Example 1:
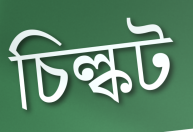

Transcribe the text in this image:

চিল্কট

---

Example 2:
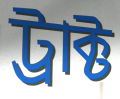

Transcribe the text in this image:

ট্রাক্ট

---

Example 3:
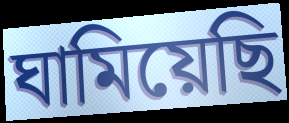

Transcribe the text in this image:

ঘামিয়েছি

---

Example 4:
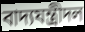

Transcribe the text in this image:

বাদ্যযন্ত্রীদল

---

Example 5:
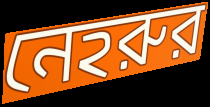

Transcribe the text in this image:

নেহরুর